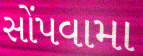
સોંપવામા